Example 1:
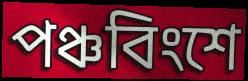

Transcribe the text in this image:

পঞ্চবিংশে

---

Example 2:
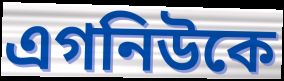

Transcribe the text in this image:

এগনিউকে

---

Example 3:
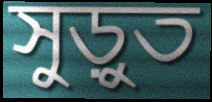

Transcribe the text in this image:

সুড়ুত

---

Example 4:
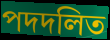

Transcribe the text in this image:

পদদলিত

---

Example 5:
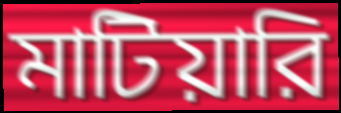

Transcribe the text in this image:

মাটিয়ারি